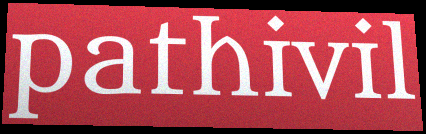
pathivil